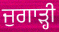
ਜੁਗਾੜ੍ਹੀ